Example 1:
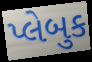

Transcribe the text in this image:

પ્લેબુક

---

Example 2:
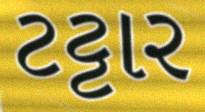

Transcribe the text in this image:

ટટ્ટાર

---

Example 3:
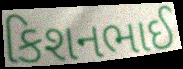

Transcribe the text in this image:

કિશનભાઈ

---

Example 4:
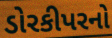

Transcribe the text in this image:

ડોરકીપરનો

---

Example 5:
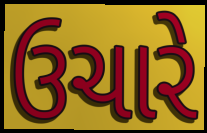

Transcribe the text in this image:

ઉચારે